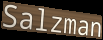
Salzman